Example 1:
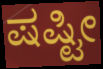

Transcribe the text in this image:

ಷಷ್ಟೀ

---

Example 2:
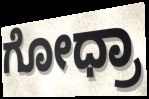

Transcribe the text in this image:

ಗೋಧ್ರಾ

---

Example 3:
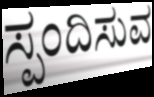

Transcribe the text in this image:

ಸ್ಪಂದಿಸುವ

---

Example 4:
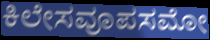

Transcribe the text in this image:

ಕಿಲೇಸವೂಪಸಮೋ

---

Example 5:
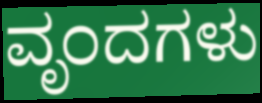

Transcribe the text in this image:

ವೃಂದಗಳು